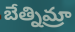
బేత్నిమ్రా